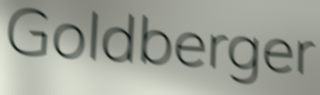
Goldberger